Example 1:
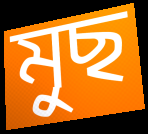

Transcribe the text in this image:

মুছ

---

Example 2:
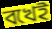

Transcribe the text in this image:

বখেই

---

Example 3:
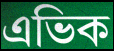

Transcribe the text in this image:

এভিক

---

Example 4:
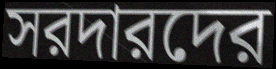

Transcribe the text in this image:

সরদারদের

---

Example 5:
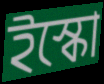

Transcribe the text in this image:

ইস্কো